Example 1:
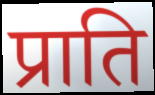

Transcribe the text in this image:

प्राति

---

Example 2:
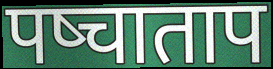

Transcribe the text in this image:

पष्चाताप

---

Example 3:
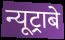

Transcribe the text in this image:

न्यूट्राबे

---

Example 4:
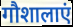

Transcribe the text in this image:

गौशालाएं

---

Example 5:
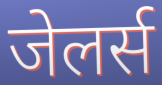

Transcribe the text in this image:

जेलर्स